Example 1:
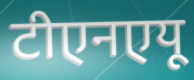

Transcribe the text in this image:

टीएनएयू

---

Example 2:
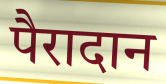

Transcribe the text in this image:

पैरादान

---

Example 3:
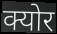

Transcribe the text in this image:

क्योर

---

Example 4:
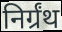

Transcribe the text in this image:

निर्ग्रंथ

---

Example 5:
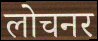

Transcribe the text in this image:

लोचनर